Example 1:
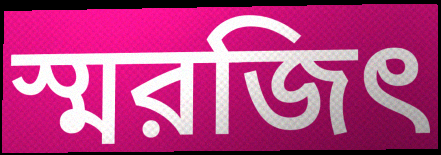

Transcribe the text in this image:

স্মরজিৎ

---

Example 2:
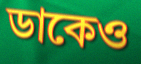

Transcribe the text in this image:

ডাকেও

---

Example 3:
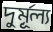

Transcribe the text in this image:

দুর্মূল্য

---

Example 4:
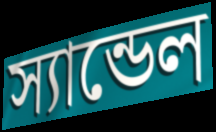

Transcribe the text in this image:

স্যান্ডেল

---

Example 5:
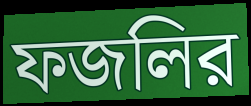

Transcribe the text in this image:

ফজলির